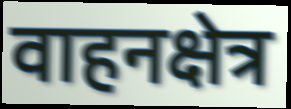
वाहनक्षेत्र